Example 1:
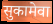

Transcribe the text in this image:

सुकामेवा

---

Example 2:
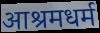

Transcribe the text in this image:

आश्रमधर्म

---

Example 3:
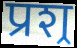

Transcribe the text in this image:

प्रश्र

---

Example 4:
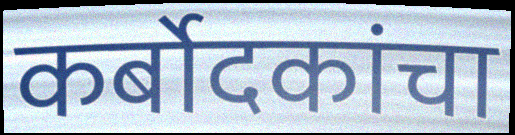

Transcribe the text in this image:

कर्बोदकांचा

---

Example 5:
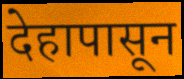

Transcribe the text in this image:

देहापासून